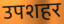
उपशहर